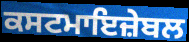
ਕਸਟਮਾਇਜ਼ੇਬਲ